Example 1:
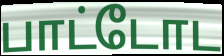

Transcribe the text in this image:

பாட்டோட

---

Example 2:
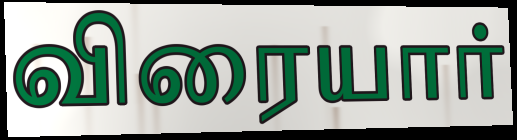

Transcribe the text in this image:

விரையார்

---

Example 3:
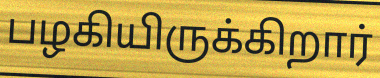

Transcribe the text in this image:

பழகியிருக்கிறார்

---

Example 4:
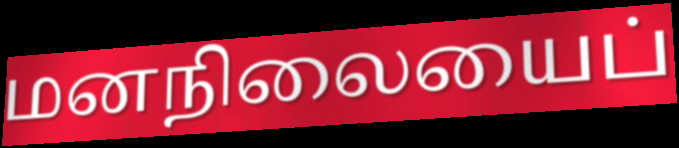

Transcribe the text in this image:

மனநிலையைப்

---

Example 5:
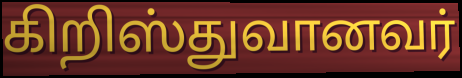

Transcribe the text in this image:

கிறிஸ்துவானவர்